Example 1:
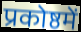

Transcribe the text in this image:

प्रकोष्ठमें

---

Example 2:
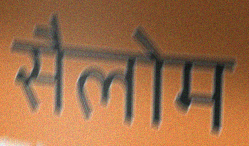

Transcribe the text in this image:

सैलोम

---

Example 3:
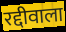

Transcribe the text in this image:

रद्दीवाला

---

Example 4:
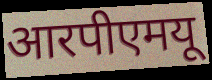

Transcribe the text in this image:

आरपीएमयू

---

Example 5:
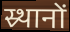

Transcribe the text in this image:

स्र्थानों